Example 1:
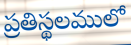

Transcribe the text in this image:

ప్రతిస్థలములో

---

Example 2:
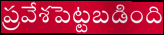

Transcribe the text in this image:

ప్రవేశపెట్టబడింది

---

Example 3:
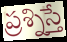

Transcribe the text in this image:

ప్రశ్నిస్తే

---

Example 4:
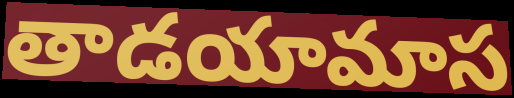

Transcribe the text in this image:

తాడయామాస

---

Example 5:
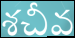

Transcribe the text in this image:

శచీవ